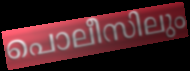
പൊലീസിലും